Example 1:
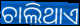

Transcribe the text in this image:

ଚାଲିଥାଏ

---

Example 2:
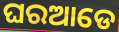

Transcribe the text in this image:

ଘରଆଡେ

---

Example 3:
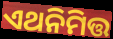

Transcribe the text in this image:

ଏଥନିମିତ୍ତ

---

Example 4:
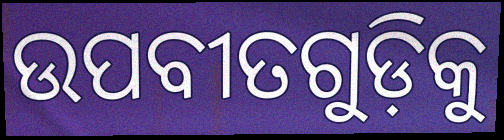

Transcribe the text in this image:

ଉପବୀତଗୁଡ଼ିକୁ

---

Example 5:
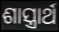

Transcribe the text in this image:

ଶାସ୍ତ୍ରାର୍ଥ